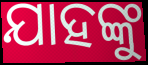
ଯାହଙ୍କୁ